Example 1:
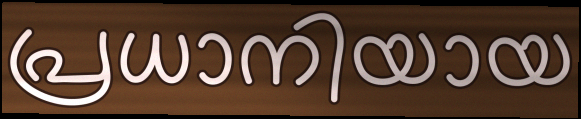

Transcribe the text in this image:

പ്രധാനിയായ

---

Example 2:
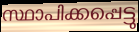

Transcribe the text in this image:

സ്ഥാപിക്കപ്പെട്ടു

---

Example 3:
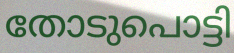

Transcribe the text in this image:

തോടുപൊട്ടി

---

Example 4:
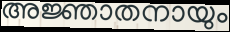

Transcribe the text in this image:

അജ്ഞാതനായും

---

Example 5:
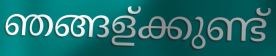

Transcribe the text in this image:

ഞങ്ങള്ക്കുണ്ട്